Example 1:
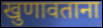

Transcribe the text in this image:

खुणावताना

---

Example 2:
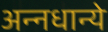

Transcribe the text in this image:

अन्नधान्ये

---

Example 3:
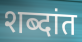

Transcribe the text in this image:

शब्दांत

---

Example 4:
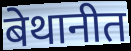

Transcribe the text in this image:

बेथानीत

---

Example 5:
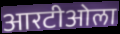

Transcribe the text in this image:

आरटीओला